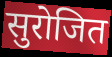
सुरोजित